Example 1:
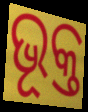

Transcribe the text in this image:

ଭୂକ୍ତ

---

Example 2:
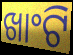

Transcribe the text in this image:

ଖାଂଟି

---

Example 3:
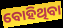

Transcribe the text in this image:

ବୋହିଥିବା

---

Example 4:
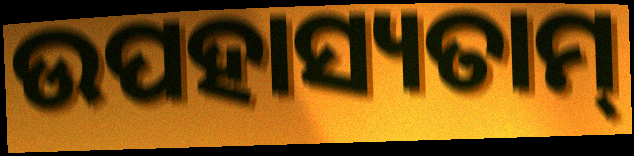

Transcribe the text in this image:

ଉପହାସ୍ୟତାମ୍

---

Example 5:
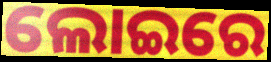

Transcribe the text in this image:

ଲୋଇରେ